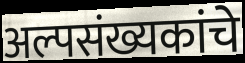
अल्पसंख्यकांचे